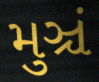
મુઞ્ચં